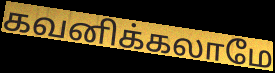
கவனிக்கலாமே